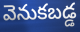
వెనుకబడ్డ